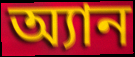
অ্যান